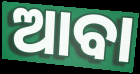
ଆବା